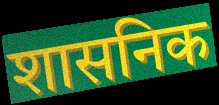
शासनिक